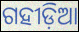
ଗହୀଡ଼ିଆ